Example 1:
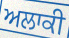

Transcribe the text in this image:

ਅਲਾਕੀ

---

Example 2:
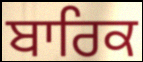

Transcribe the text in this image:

ਬਾਰਿਕ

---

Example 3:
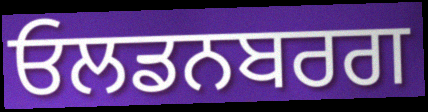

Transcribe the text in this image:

ਓਲਡਨਬਰਗ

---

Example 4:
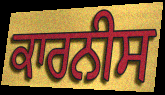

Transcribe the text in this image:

ਕਾਰਨੀਸ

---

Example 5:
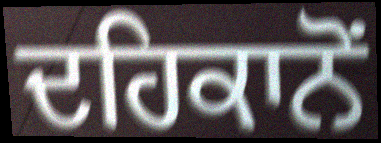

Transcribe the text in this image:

ਦਹਿਕਾਨੋਂ